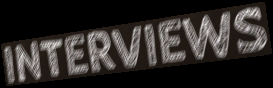
INTERVIEWS